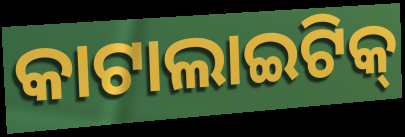
କାଟାଲାଇଟିକ୍